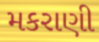
મકરાણી